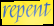
repent